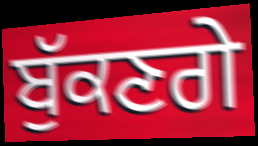
ਬੁੱਕਣਗੇ